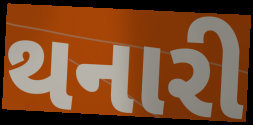
થનારી